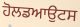
ਹੋਲਡਆਉਟਸ